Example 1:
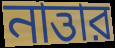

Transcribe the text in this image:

নাত্তার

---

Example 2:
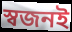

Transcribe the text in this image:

স্বজনই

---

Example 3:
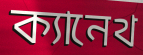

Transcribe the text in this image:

ক্যানেথ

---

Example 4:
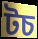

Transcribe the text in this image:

টচ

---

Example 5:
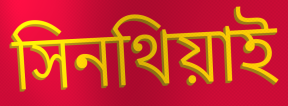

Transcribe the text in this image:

সিনথিয়াই